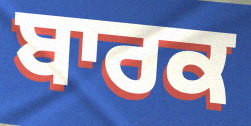
ਬਾਰਕ